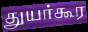
துயர்கூர